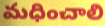
మధించాలి